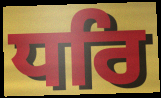
ਧਰਿ